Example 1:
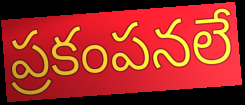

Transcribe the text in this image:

ప్రకంపనలే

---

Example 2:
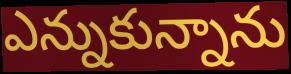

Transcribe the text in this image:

ఎన్నుకున్నాను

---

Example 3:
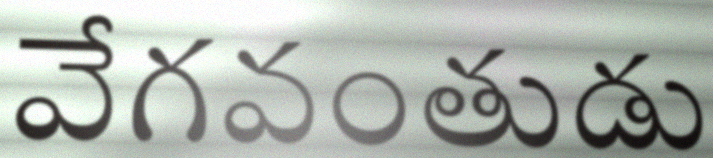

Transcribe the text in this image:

వేగవంతుడు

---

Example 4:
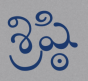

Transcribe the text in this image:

శ్రిష్ఠి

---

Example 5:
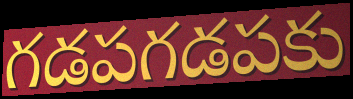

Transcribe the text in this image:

గడపగడపకు